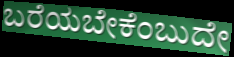
ಬರೆಯಬೇಕೆಂಬುದೇ